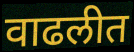
वाढलीत